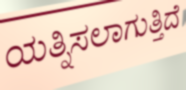
ಯತ್ನಿಸಲಾಗುತ್ತಿದೆ